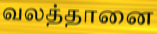
வலத்தானை